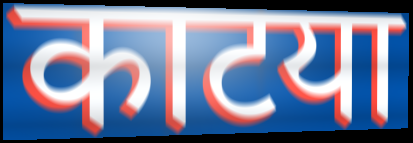
काटया